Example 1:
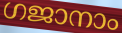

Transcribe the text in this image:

ഗജാനാം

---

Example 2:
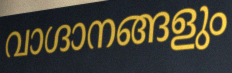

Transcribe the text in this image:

വാഗ്ദാനങ്ങളും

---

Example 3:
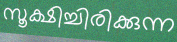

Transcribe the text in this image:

സൂക്ഷിച്ചിരിക്കുന്ന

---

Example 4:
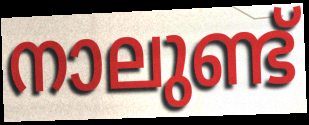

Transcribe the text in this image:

നാലുണ്ട്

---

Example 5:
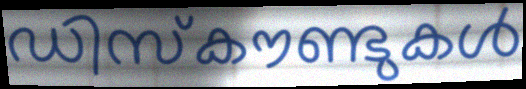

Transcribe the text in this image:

ഡിസ്കൗണ്ടുകൾ